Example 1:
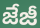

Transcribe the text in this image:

జేజీ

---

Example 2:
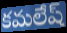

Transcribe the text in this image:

కమలేష్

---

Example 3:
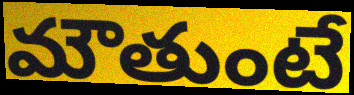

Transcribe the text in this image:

మౌతుంటే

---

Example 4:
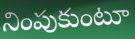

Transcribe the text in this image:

నింపుకుంటూ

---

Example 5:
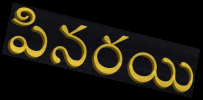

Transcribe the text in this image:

పినరయి